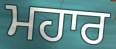
ਮਹਾਰ